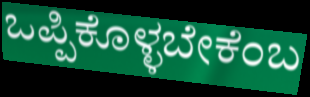
ಒಪ್ಪಿಕೊಳ್ಳಬೇಕೆಂಬ